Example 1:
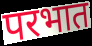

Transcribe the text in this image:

परभात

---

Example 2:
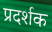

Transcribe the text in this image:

प्रदर्शक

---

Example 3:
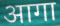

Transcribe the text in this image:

आगा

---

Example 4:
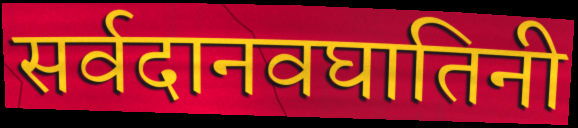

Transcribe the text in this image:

सर्वदानवघातिनी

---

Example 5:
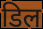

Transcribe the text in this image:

डिल